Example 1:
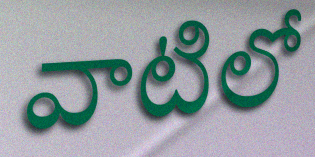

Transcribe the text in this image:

వాటిలో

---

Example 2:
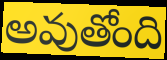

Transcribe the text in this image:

అవుతోంది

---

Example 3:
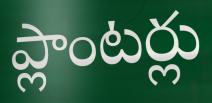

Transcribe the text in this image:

ప్లాంటర్లు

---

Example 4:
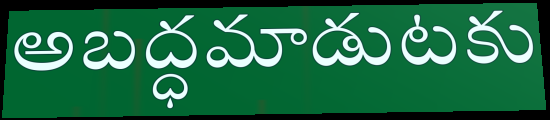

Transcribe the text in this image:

అబద్ధమాడుటకు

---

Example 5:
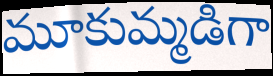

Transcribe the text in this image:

మూకుమ్మడిగా